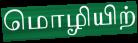
மொழியிற்